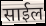
साईल